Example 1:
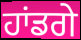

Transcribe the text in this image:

ਹਾਂਡਗੇ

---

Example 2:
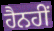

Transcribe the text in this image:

ਹੈਨਹੀਂ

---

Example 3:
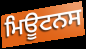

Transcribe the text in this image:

ਮਿਊਟਨਸ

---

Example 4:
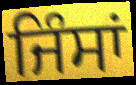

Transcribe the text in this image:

ਜਿੰਸਾਂ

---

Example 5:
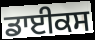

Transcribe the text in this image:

ਡਾਈਕਸ